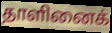
தாளினைக்